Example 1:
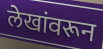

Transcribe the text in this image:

लेखांवरून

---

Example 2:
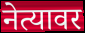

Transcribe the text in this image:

नेत्यावर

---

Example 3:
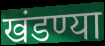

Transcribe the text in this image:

खंडण्या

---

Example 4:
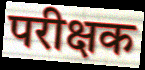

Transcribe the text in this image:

परीक्षक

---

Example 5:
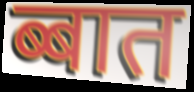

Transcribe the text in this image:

ब्बात